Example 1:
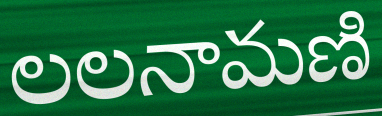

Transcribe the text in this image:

లలనామణి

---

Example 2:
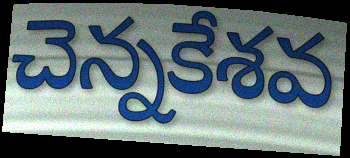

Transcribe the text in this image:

చెన్నకేశవ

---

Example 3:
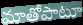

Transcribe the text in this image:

మాతోపాటూ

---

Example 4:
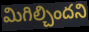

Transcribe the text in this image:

మిగిల్చిందని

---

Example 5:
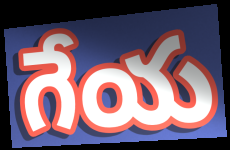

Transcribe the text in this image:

గేయ